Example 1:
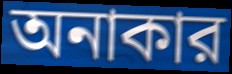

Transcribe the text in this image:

অনাকার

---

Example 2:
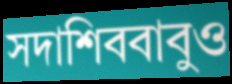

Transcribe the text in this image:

সদাশিববাবুও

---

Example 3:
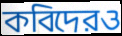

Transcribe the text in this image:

কবিদেরও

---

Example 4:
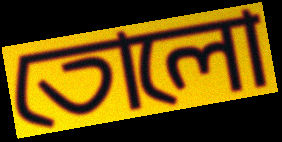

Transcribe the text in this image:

তোলো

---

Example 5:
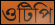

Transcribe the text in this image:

ওটিপি